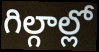
గిల్గాల్లో